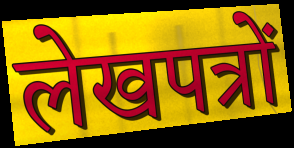
लेखपत्रों